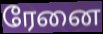
ரேனை